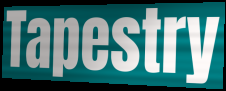
Tapestry